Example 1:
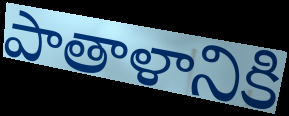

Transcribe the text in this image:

పాతాళానికి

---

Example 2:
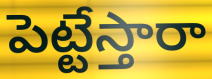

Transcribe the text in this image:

పెట్టేస్తారా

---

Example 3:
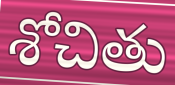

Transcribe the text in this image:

శోచితు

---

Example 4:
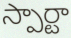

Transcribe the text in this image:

స్పార్టా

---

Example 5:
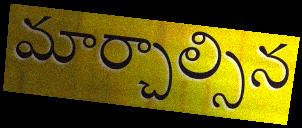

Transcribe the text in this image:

మార్చాల్సిన